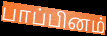
பாப்பினம்